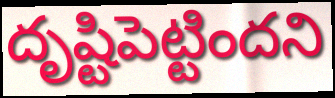
దృష్టిపెట్టిందని